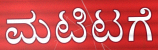
ಮಟಿಟಗೆ